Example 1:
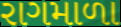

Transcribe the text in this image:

રાગમાળા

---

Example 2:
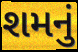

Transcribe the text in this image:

શમનું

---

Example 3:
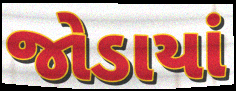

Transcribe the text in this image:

જોડાયાં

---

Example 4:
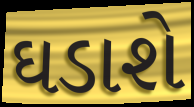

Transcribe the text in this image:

ઘડાશે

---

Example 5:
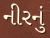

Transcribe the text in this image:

નીરનું